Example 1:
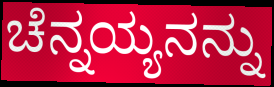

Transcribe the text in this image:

ಚೆನ್ನಯ್ಯನನ್ನು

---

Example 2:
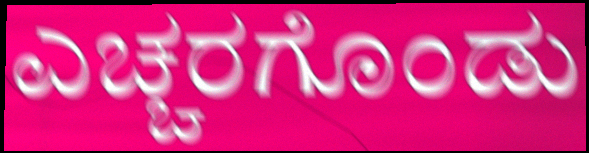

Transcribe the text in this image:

ಎಚ್ಚರಗೊಂಡು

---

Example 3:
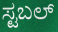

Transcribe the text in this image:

ಸ್ಟಬಲ್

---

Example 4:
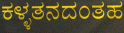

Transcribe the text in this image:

ಕಳ್ಳತನದಂತಹ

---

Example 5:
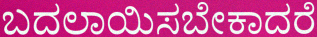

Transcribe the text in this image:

ಬದಲಾಯಿಸಬೇಕಾದರೆ